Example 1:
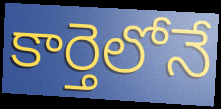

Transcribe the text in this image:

కార్తెలోనే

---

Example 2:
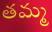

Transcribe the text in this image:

తమ్మ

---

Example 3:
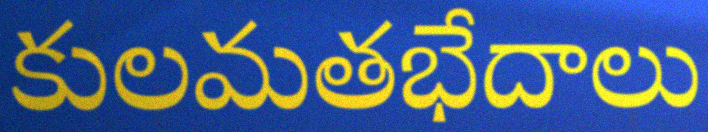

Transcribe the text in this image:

కులమతభేదాలు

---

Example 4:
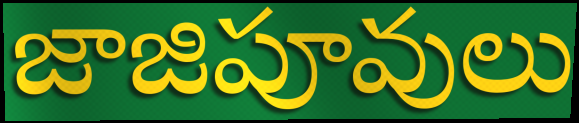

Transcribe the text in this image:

జాజిపూవులు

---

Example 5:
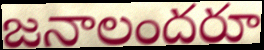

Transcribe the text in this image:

జనాలందరూ